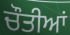
ਚੌਤੀਆਂ